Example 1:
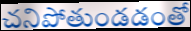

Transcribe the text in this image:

చనిపోతుండడంతో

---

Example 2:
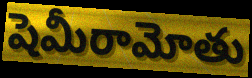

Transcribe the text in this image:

షెమీరామోతు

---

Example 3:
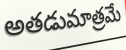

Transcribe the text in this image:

అతడుమాత్రమే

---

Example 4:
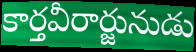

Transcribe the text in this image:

కార్తవీరార్జునుడు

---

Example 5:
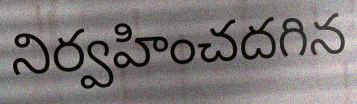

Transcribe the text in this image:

నిర్వహించదగిన